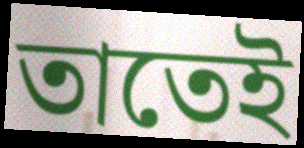
তাতেই